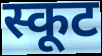
स्कूट